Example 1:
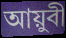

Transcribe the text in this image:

আয়ুবী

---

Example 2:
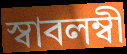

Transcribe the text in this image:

স্বাবলম্বী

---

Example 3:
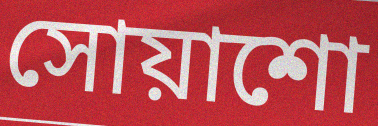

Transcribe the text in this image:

সোয়াশো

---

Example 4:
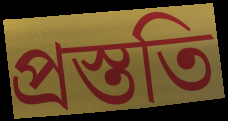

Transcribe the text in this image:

প্রস্ততি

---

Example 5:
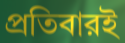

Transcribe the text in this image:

প্রতিবারই